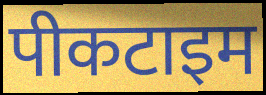
पीकटाइम